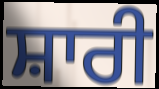
ਸ਼ਾਰੀ